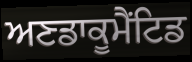
ਅਣਡਾਕੂਮੈਂਟਿਡ